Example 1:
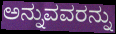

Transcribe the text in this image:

ಅನ್ನುವವರನ್ನು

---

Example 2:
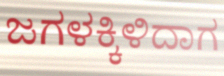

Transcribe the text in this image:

ಜಗಳಕ್ಕಿಳಿದಾಗ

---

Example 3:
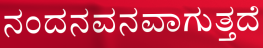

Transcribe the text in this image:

ನಂದನವನವಾಗುತ್ತದೆ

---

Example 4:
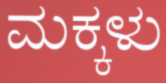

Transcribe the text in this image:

ಮಕ್ಕಳು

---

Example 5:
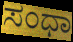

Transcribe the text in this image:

ಸಂಧಾ